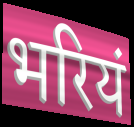
भरियं